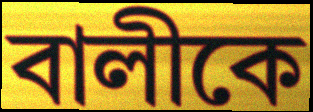
বালীকে